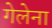
गेलेना